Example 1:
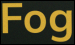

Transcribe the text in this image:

Fog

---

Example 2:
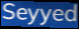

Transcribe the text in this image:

Seyyed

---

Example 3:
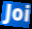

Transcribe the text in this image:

Joi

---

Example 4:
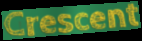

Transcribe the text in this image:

Crescent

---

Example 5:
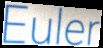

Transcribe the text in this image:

Euler